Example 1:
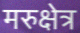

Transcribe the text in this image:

मरुक्षेत्र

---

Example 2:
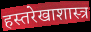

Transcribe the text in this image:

हस्तरेखाशास्त्र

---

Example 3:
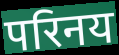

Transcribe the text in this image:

परिनय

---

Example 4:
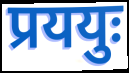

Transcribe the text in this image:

प्रययुः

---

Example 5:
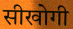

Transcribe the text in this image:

सीखोगी